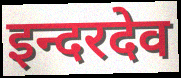
इन्दरदेव